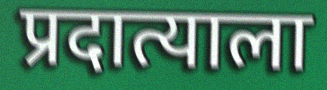
प्रदात्याला